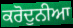
ਕਰੋਦੁਨੀਆ